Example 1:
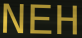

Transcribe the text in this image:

NEH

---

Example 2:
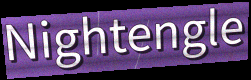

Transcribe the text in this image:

Nightengle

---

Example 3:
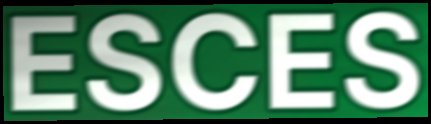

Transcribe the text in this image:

ESCES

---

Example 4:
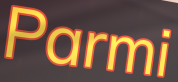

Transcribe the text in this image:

Parmi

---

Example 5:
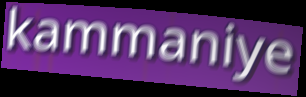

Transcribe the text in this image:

kammaniye